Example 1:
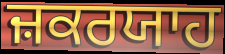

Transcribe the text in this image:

ਜ਼ਕਰਯਾਹ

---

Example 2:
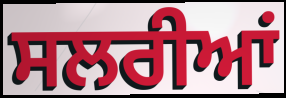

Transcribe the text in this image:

ਸਲਰੀਆਂ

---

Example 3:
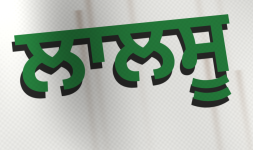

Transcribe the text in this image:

ਲਾਲਸੂ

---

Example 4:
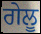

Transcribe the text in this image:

ਗੇਲੂ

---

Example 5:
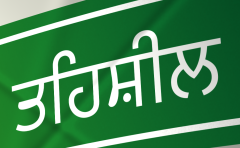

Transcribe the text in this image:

ਤਹਿਸ਼ੀਲ